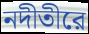
নদীতীরে